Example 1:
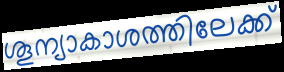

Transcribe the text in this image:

ശൂന്യാകാശത്തിലേക്ക്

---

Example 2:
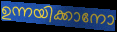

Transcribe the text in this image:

ഉന്നയിക്കാനോ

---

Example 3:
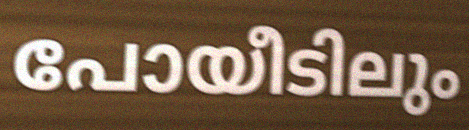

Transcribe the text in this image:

പോയീടിലും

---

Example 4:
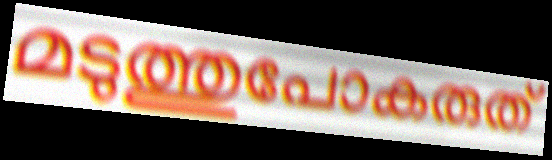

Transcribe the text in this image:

മടുത്തുപോകരുത്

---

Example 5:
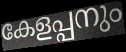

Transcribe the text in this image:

കേളപ്പനും